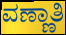
ವಣ್ಣಾತಿ